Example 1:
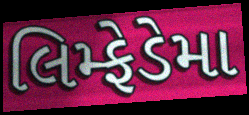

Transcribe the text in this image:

લિમ્ફેડેમા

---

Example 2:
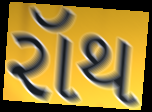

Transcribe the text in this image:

રૉથ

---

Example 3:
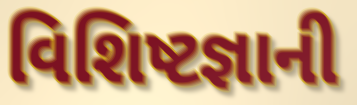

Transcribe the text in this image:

વિશિષ્ટજ્ઞાની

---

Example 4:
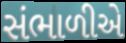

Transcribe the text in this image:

સંભાળીએ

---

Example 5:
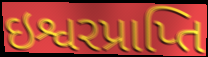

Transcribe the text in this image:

ઇશ્વરપ્રાપ્તિ